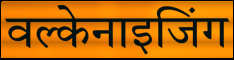
वल्केनाइजिंग